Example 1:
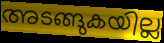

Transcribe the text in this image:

അടങ്ങുകയില്ല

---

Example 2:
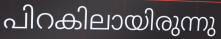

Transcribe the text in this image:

പിറകിലായിരുന്നു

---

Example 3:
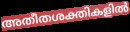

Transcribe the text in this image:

അതീതശക്തികളിൽ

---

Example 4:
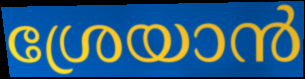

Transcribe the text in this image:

ശ്രേയാൻ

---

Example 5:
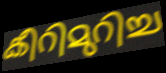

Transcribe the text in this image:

കീറിമുറിച്ച